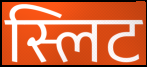
स्लिट